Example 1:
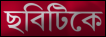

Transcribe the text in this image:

ছবিটিকে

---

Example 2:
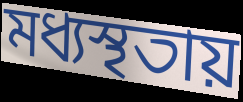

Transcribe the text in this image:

মধ্যস্থতায়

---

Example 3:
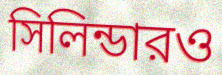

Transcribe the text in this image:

সিলিন্ডারও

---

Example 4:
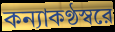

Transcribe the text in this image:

কন্যাকণ্ঠস্বরে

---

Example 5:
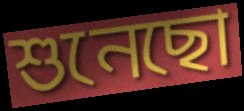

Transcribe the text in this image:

শুনেছো